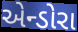
એન્ડોરા